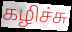
கழிச்சு